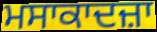
ਮਸਾਕਾਦਜ਼ਾ